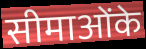
सीमाओंके